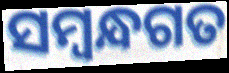
ସମ୍ବନ୍ଧଗତ